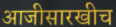
आजीसारखीच